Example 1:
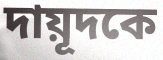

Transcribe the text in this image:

দায়ূদকে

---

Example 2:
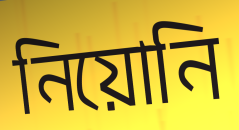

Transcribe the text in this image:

নিয়োনি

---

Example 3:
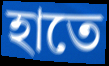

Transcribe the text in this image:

হাতে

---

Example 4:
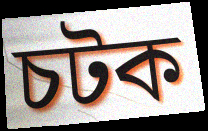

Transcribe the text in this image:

চটক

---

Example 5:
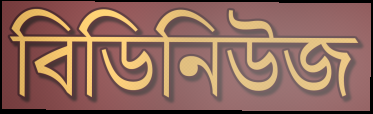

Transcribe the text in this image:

বিডিনিউজ